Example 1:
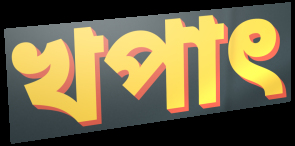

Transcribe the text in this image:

খপাৎ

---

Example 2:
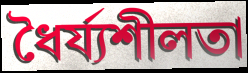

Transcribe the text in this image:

ধৈর্য্যশীলতা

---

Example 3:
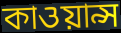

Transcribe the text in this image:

কাওয়ান্স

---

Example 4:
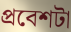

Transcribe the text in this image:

প্রবেশটা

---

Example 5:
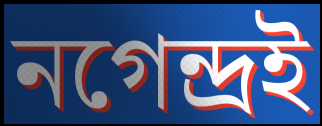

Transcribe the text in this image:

নগেন্দ্রই